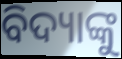
ବିଦ୍ୟାଙ୍କୁ